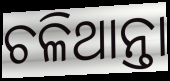
ଚଳିଥାନ୍ତା